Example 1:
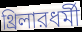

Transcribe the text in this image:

থ্রিলারধর্মী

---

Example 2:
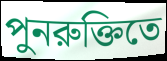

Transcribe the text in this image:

পুনরুক্তিতে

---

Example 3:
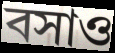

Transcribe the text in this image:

বসাও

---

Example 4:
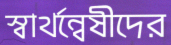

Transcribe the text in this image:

স্বার্থন্বেষীদের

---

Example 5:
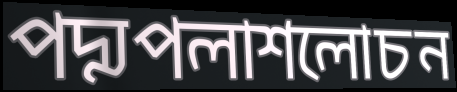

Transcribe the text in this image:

পদ্মপলাশলোচন